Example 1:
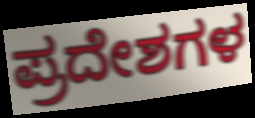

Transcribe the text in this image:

ಪ್ರದೇಶಗಳ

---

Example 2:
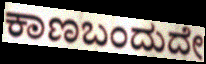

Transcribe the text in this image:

ಕಾಣಬಂದುದೇ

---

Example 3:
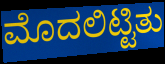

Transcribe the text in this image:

ಮೊದಲಿಟ್ಟಿತು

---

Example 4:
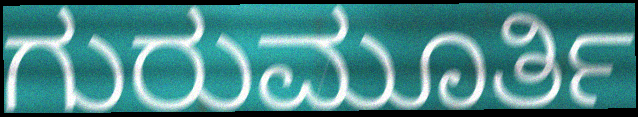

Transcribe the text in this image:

ಗುರುಮೂರ್ತಿ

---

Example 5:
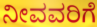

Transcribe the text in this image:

ನೀವವರಿಗೆ